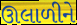
ઊલાળીને